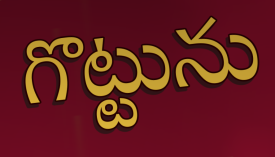
గొట్టును